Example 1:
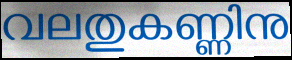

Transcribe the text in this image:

വലതുകണ്ണിനു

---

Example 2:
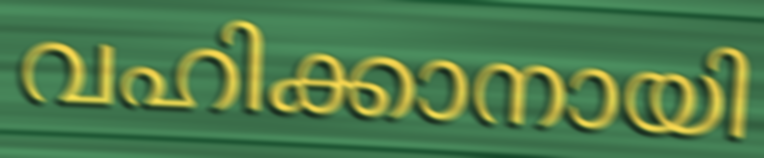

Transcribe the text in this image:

വഹിക്കാനായി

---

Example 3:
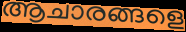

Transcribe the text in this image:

ആചാരങ്ങളെ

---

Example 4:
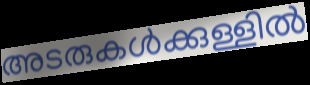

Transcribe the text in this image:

അടരുകൾക്കുള്ളിൽ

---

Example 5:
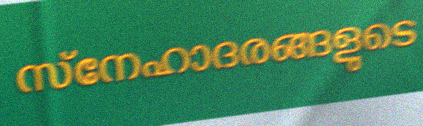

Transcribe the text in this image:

സ്‌നേഹാദരങ്ങളുടെ